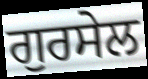
ਗੁਰਸੇਲ